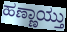
ಹಣ್ಣಾಯ್ತು